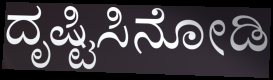
ದೃಷ್ಟಿಸಿನೋಡಿ